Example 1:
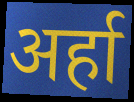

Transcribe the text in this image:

अर्हा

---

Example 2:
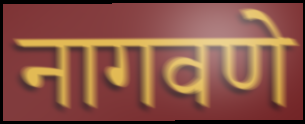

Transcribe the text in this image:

नागवणे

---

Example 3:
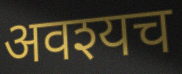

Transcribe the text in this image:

अवश्यच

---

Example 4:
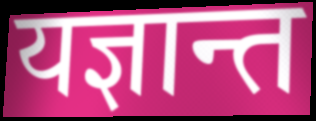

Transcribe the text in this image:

यज्ञान्त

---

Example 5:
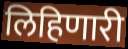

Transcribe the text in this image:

लिहिणारी